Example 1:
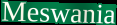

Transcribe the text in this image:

Meswania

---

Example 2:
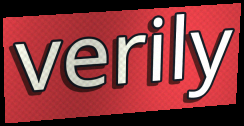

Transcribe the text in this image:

verily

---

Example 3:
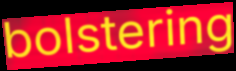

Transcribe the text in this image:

bolstering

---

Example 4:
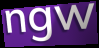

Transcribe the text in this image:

ngw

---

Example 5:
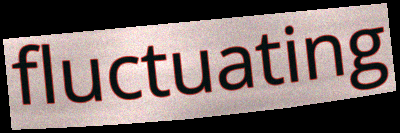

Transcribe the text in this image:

fluctuating